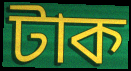
টাক